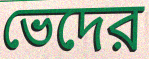
ভেদের